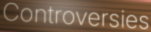
Controversies